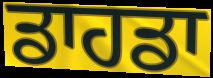
ਡਾਹਡਾ